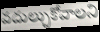
వదుల్చుకోవాలని